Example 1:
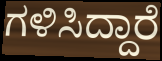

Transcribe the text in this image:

ಗಳಿಸಿದ್ದಾರೆ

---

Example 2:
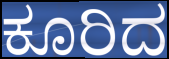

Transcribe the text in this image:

ಕೂರಿದ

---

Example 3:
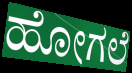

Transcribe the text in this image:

ಹೋಗಲೆ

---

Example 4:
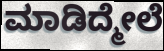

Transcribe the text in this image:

ಮಾಡಿದ್ಮೇಲೆ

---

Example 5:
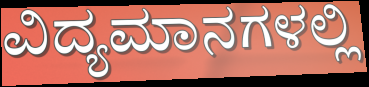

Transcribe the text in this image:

ವಿದ್ಯಮಾನಗಳಲ್ಲಿ